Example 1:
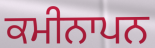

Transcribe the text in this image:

ਕਮੀਨਾਪਨ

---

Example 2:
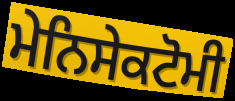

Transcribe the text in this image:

ਮੇਨਿਸੇਕਟੋਮੀ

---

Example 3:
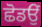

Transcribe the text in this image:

ਛੋਡਉਂ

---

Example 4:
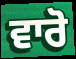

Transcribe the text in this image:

ਵਾਰੋ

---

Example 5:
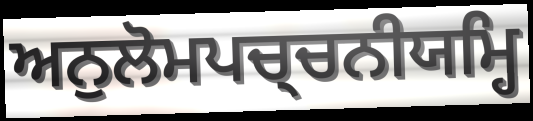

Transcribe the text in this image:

ਅਨੁਲੋਮਪਚ੍ਚਨੀਯਮ੍ਹਿ